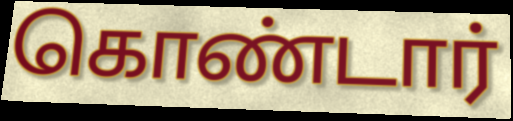
கொண்டார்